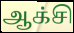
ஆக்சி